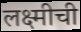
लक्ष्मीची